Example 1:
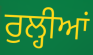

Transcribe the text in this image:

ਰੁਲ੍ਹੀਆਂ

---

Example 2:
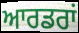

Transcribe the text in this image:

ਆਰਡਰਾਂ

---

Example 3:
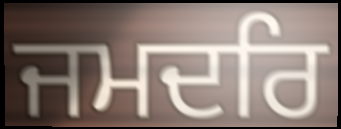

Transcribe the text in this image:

ਜਮਦਰਿ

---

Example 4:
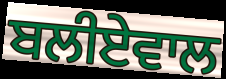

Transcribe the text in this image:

ਬਲੀਏਵਾਲ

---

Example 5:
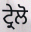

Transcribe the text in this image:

ਟ੍ਰੇਲੋ